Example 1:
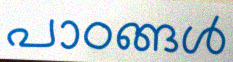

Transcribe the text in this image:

പാഠങ്ങൾ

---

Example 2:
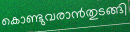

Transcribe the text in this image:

കൊണ്ടുവരാൻതുടങ്ങി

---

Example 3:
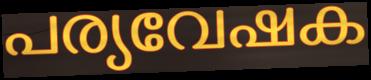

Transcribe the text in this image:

പര്യവേഷക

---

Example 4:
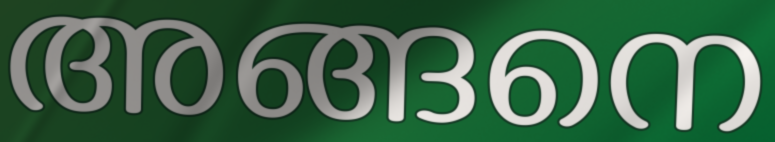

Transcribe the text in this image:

അങ്ങനെ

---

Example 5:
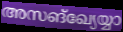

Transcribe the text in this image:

അസങ്ഖ്യേയ്യാ